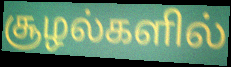
சூழல்களில்